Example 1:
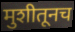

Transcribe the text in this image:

मुशीतूनच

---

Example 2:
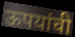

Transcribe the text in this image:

ऊपयांची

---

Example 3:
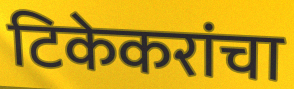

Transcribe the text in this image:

टिकेकरांचा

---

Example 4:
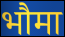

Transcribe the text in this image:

भौमा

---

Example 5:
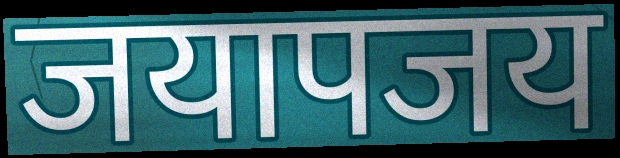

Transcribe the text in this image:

जयापजय